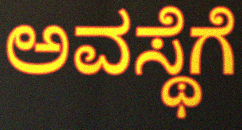
ಅವಸ್ಥೆಗೆ